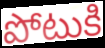
పోటుకి